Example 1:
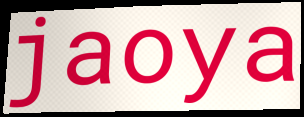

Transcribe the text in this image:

jaoya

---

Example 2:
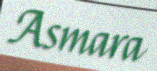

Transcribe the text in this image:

Asmara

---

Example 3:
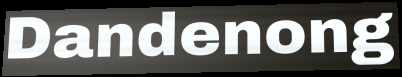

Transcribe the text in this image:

Dandenong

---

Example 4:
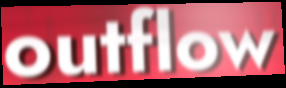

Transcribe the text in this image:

outflow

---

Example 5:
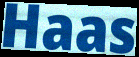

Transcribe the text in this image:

Haas